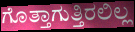
ಗೊತ್ತಾಗುತ್ತಿರಲಿಲ್ಲ